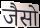
जैसो